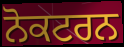
ਨੋਕਟਰਨ